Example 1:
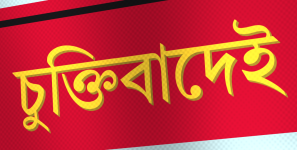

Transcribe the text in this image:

চুক্তিবাদেই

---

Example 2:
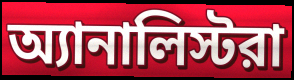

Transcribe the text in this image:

অ্যানালিস্টরা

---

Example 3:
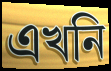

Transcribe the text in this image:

এখনি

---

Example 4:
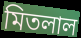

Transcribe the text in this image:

মিতলাল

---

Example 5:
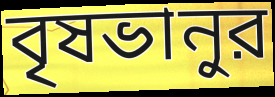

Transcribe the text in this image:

বৃষভানুর